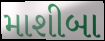
માશીબા